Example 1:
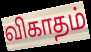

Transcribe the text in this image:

விகாதம்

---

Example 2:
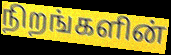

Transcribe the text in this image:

நிறங்களின்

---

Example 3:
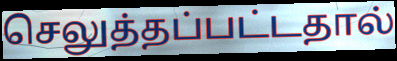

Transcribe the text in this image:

செலுத்தப்பட்டதால்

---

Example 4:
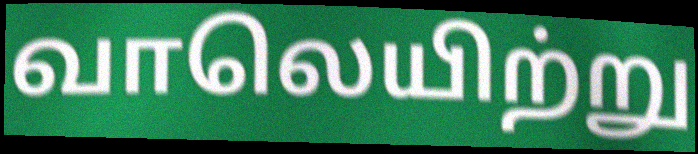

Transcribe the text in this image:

வாலெயிற்று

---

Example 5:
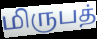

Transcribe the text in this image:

மிருபத்